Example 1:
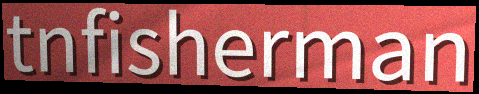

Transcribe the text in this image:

tnfisherman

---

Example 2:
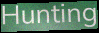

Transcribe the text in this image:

Hunting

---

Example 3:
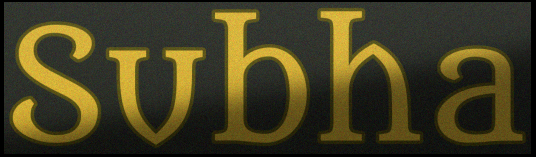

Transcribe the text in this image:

Subha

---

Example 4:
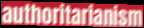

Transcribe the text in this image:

authoritarianism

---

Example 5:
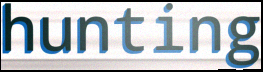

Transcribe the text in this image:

hunting